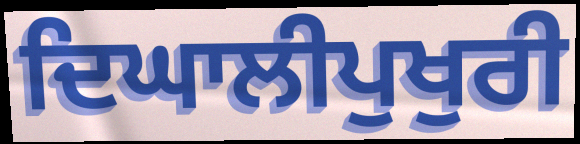
ਦਿਘਾਲੀਪੁਖੁਰੀ